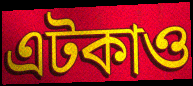
এটকাও